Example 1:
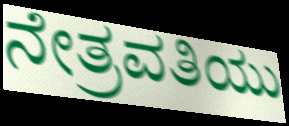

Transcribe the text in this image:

ನೇತ್ರವತಿಯು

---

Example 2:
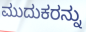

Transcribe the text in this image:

ಮುದುಕರನ್ನು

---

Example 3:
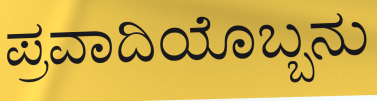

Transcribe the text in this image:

ಪ್ರವಾದಿಯೊಬ್ಬನು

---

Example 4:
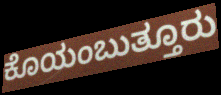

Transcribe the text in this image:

ಕೊಯಂಬುತ್ತೂರು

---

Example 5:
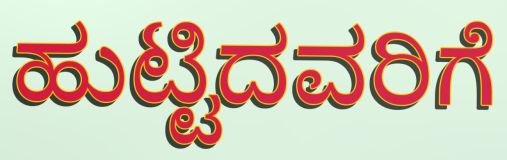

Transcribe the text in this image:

ಹುಟ್ಟಿದವರಿಗೆ